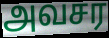
அவசர